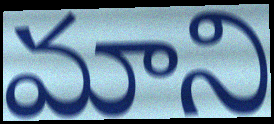
మాని